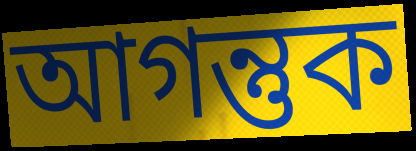
আগন্তুক